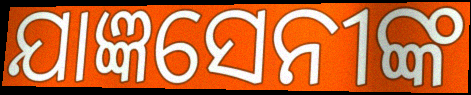
ଯାଜ୍ଞସେନୀଙ୍କ